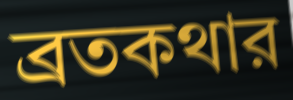
ব্রতকথার